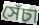
সেঁচা